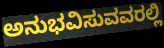
ಅನುಭವಿಸುವವರಲ್ಲಿ